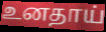
உனதாய்